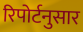
रिपोर्टनुसार